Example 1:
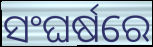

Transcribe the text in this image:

ସଂଘର୍ଷରେ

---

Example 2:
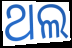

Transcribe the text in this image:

ଥଲ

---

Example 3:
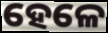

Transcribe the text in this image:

ହେଳେ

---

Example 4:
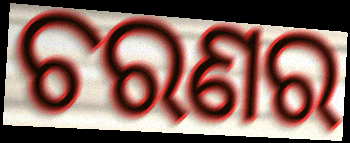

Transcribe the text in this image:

ଚରଣର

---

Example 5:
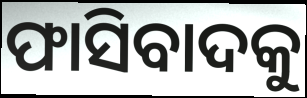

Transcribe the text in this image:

ଫାସିବାଦକୁ